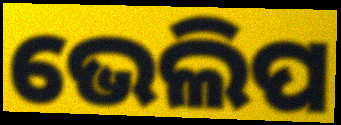
ଭେଲିପ